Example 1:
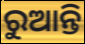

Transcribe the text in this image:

ରୁଆନ୍ତି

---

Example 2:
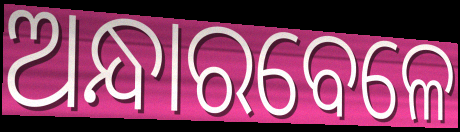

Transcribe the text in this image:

ଅନ୍ଧାରବେଳେ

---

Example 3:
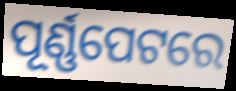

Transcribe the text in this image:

ପୂର୍ଣ୍ଣପେଟରେ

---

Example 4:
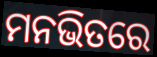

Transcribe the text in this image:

ମନଭିତରେ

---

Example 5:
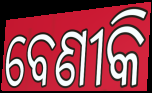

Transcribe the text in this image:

ବେଣୀକି